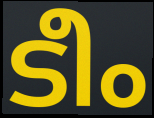
ടീം